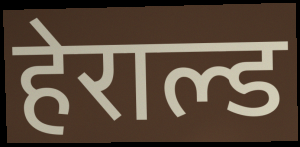
हेराल्ड